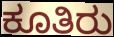
ಕೂತಿರು